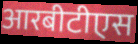
आरबीटीएस